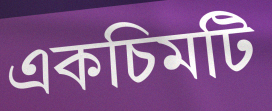
একচিমটি